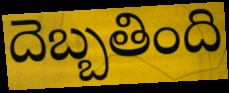
దెబ్బతింది